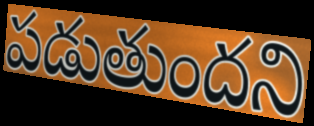
పడుతుందని